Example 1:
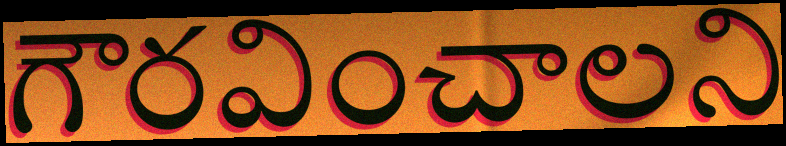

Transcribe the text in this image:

గౌరవించాలని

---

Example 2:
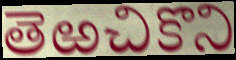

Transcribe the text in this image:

తెఱచికొని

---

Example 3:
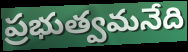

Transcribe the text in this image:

ప్రభుత్వమనేది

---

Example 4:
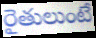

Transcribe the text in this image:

రైతులుంటే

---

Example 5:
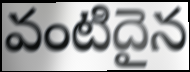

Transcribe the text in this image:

వంటిదైన